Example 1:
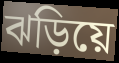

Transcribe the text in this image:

ঝড়িয়ে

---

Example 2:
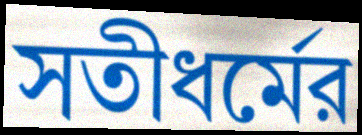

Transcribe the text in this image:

সতীধর্মের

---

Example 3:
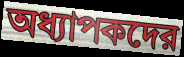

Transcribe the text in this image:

অধ্যাপকদের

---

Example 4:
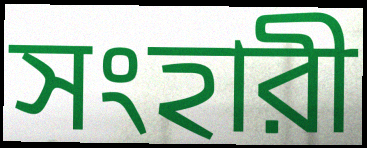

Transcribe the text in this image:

সংহারী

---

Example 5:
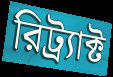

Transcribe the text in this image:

রিট্র্যাক্ট